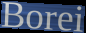
Borei